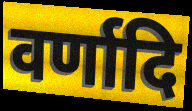
वर्णादि